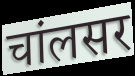
चांलसर